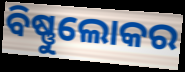
ବିଷ୍ଣୁଲୋକର